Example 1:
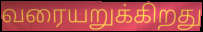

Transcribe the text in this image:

வரையறுக்கிறது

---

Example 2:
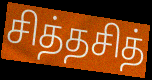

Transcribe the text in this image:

சித்தசித்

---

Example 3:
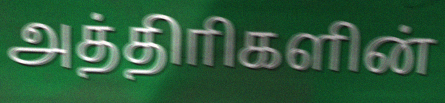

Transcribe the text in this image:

அத்திரிகளின்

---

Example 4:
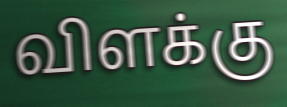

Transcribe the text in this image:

விளக்கு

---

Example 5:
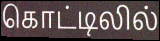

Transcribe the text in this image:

கொட்டிலில்